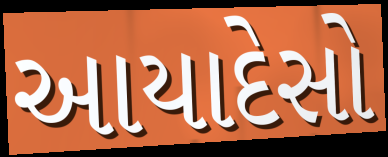
આયાદેસો